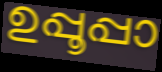
ഉപ്പൂപ്പാ